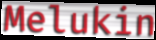
Melukin